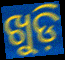
ଖୁଡ଼ି